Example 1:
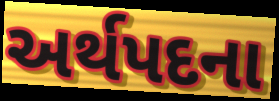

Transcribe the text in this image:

અર્થપદના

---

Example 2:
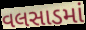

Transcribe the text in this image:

વલસાડમાં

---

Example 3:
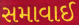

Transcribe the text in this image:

સમાવાઈ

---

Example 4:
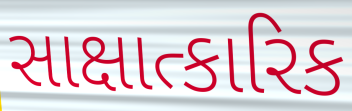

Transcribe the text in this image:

સાક્ષાત્કારિક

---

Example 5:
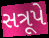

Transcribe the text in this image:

સત્રૂપે